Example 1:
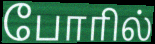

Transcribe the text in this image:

போரில்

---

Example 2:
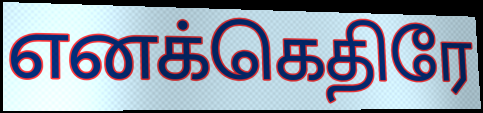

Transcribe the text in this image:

எனக்கெதிரே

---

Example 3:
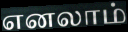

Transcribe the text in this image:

எனலாம்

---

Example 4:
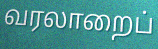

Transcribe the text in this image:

வரலாறைப்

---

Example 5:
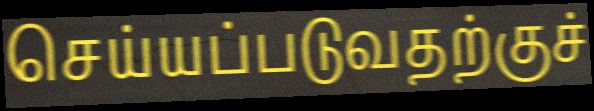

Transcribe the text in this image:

செய்யப்படுவதற்குச்